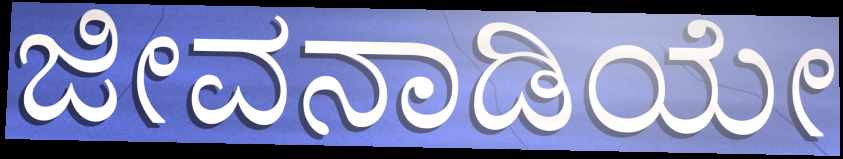
ಜೀವನಾಡಿಯೇ